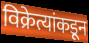
विक्रेत्यांकडून